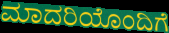
ಮಾದರಿಯೊಂದಿಗೆ